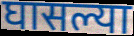
घासल्या